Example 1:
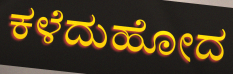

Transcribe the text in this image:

ಕಳೆದುಹೋದ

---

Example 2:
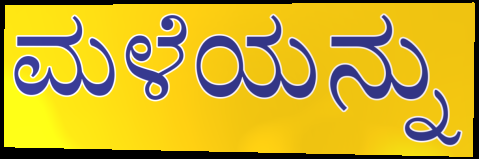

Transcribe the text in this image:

ಮಳೆಯನ್ನು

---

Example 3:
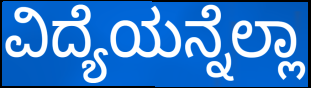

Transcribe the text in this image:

ವಿದ್ಯೆಯನ್ನೆಲ್ಲಾ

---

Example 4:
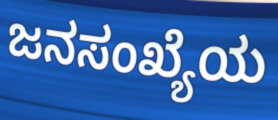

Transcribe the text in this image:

ಜನಸಂಖ್ಯೆಯ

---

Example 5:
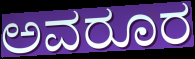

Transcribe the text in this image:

ಅವರೂರ